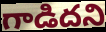
గాడిదని